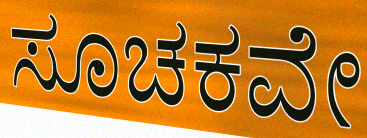
ಸೂಚಕವೇ